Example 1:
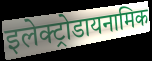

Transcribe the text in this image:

इलेक्ट्रोडायनामिक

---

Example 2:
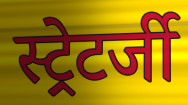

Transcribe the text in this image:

स्ट्रेटर्जी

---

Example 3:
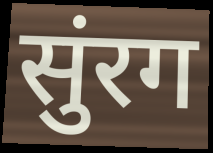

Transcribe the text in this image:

सुंरग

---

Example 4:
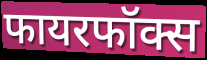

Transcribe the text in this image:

फायरफॉक्स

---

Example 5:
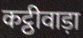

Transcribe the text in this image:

कट्ठीवाड़ा